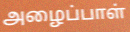
அழைப்பாள்